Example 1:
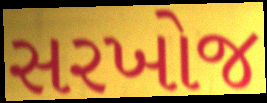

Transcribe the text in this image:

સરખોજ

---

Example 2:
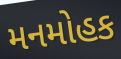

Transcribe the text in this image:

મનમોહક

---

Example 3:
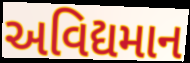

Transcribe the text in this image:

અવિદ્યમાન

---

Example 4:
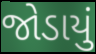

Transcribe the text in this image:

જોડાયું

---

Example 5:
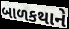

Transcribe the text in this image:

બાળકથાને